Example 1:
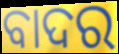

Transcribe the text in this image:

ବାଦର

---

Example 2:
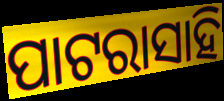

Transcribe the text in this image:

ପାଟରାସାହି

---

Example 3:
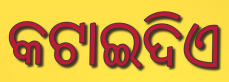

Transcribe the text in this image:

କଟାଇଦିଏ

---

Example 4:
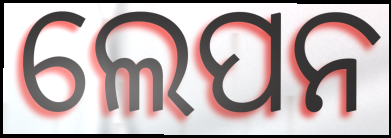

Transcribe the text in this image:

ଲେପନ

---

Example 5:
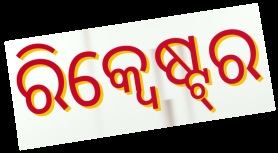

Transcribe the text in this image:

ରିକ୍ୱେଷ୍ଟ୍‌ର